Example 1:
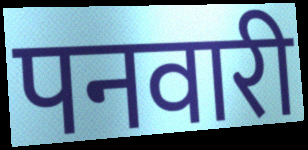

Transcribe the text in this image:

पनवारी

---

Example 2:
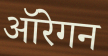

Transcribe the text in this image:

ऑरेगन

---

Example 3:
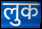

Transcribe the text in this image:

लुक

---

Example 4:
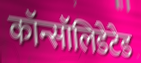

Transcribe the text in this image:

कॉन्सॉलिडेटेड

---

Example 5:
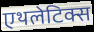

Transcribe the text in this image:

एथलेटिक्स